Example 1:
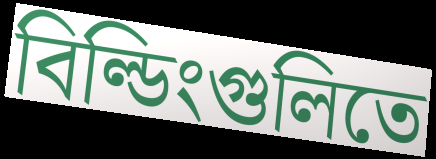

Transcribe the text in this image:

বিল্ডিংগুলিতে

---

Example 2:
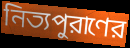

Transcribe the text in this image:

নিত্যপুরাণের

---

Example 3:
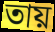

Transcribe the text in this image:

তায়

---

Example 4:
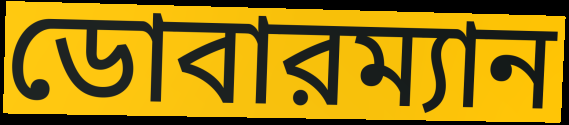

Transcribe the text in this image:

ডোবারম্যান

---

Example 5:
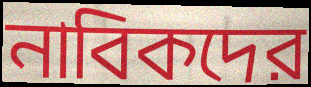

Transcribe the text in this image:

নাবিকদের